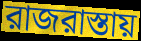
রাজরাস্তায়